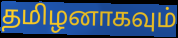
தமிழனாகவும்